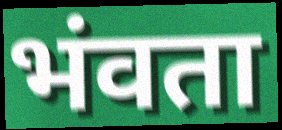
भंवता